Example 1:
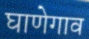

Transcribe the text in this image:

घाणेगाव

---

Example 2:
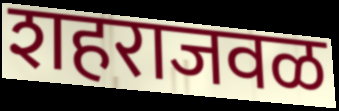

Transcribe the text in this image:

शहराजवळ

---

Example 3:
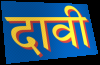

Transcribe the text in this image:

दावी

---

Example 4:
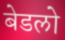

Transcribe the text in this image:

बेडलो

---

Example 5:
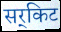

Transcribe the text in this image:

सर्किट